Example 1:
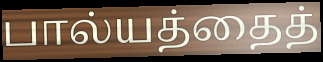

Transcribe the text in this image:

பால்யத்தைத்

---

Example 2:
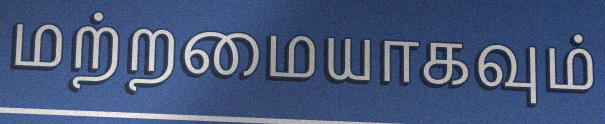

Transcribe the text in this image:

மற்றமையாகவும்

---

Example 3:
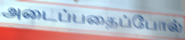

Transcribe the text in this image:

அடைப்பதைப்போல்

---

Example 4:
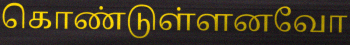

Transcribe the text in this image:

கொண்டுள்ளனவோ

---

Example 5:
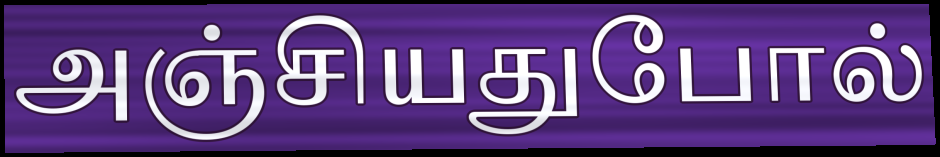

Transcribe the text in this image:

அஞ்சியதுபோல்